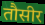
तौसीर